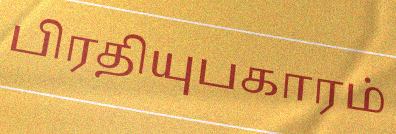
பிரதியுபகாரம்